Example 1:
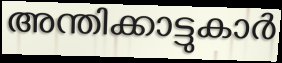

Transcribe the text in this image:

അന്തിക്കാട്ടുകാർ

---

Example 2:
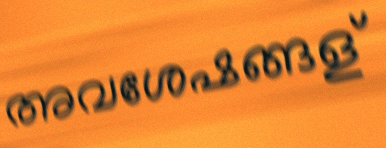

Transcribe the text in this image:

അവശേഷങ്ങള്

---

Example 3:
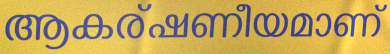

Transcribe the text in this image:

ആകര്ഷണീയമാണ്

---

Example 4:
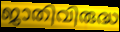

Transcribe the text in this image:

ജാതിവിരുദ്ധ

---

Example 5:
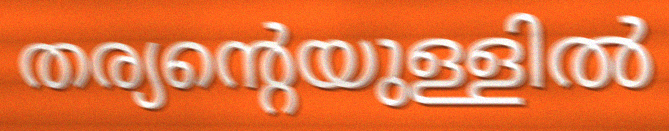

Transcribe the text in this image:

തര്യന്റെയുള്ളിൽ